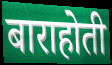
बाराहोती